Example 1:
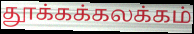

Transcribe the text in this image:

தூக்கக்கலக்கம்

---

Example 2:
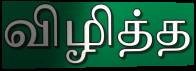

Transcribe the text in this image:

விழித்த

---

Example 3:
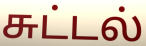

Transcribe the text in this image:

சுட்டல்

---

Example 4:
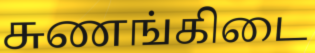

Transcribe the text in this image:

சுணங்கிடை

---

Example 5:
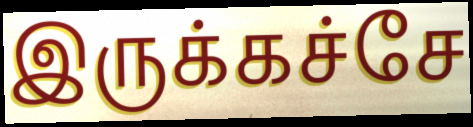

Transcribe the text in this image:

இருக்கச்சே